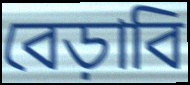
বেড়াবি